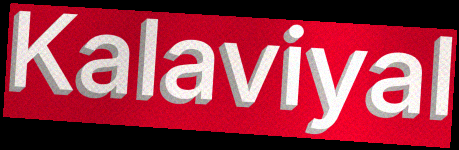
Kalaviyal